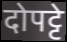
दोपट्टे